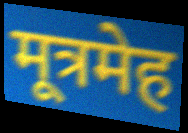
मूत्रमेह